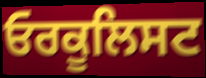
ਓਰਕੂਲਿਸਟ